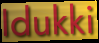
Idukki